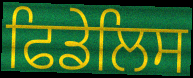
ਫਿਡੇਲਿਸ